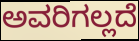
ಅವರಿಗಲ್ಲದೆ